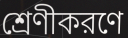
শ্রেণীকরণে